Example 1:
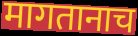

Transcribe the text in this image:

मागतानाच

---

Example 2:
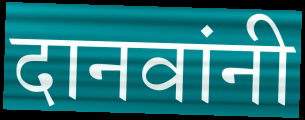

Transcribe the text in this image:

दानवांनी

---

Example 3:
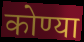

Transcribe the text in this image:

कोण्या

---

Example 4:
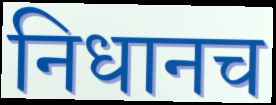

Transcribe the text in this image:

निधानच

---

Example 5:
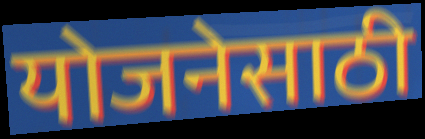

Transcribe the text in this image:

योजनेसाठी